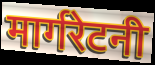
मार्गरेटनी